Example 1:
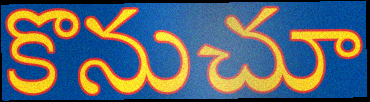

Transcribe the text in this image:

కొనుచూ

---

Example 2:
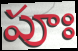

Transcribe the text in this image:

పూః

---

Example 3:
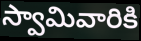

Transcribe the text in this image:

స్వామివారికి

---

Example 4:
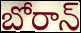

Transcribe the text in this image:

బోరాన్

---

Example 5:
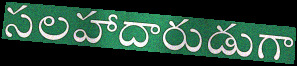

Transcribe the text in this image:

సలహాదారుడుగా